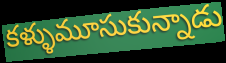
కళ్ళుమూసుకున్నాడు